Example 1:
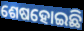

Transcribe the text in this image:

ଶେଷହୋଇଛି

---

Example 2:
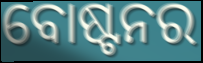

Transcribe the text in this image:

ବୋଷ୍ଟନର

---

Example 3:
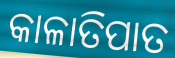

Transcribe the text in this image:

କାଳାତିପାତ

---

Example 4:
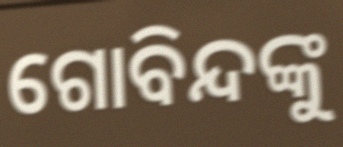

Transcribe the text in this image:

ଗୋବିନ୍ଦଙ୍କୁ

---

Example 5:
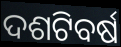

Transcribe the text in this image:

ଦଶଟିବର୍ଷ